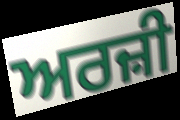
ਅਰਜ਼ੀ